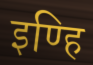
इण्हि